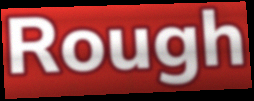
Rough